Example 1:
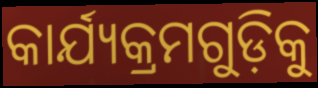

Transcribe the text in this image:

କାର୍ଯ୍ୟକ୍ରମଗୁଡ଼ିକୁ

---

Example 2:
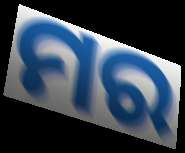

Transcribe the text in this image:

ମର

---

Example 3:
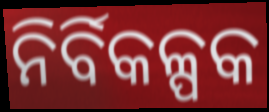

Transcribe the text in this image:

ନିର୍ବିକଳ୍ପକ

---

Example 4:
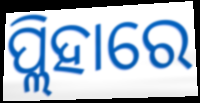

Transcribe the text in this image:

ପ୍ଲିହାରେ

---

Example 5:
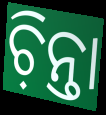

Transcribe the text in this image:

ଚ଼ିନ୍ତା